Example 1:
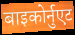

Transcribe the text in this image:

बाइकोर्नुएट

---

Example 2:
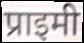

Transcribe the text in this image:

प्राइमी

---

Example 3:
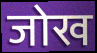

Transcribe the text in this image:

जोख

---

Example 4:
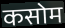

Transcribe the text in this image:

कसोम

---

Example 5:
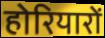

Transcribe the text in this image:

होरियारों